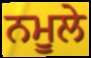
ਨਮੂਲੇ